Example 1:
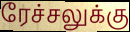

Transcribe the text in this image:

ரேச்சலுக்கு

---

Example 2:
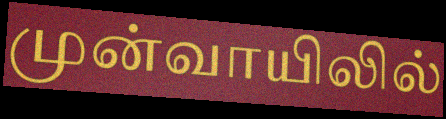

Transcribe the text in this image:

முன்வாயிலில்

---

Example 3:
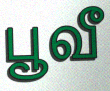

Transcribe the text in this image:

பூவீ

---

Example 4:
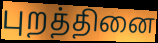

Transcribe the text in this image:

புறத்தினை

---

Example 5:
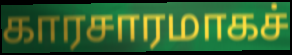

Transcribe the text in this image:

காரசாரமாகச்